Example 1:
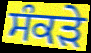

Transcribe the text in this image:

ਸੰਕੜੇ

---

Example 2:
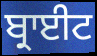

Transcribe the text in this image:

ਬ੍ਰਾਈਟ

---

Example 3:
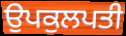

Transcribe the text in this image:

ਉਪਕੁਲਪਤੀ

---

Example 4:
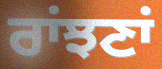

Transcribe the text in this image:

ਰਾਂਝਣਾਂ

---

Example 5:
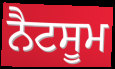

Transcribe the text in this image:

ਨੈਟਸੂਮ